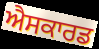
ਐਸਕਾਰਡ